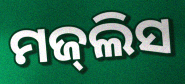
ମଜ୍‌ଲିସ